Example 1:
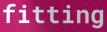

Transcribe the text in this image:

fitting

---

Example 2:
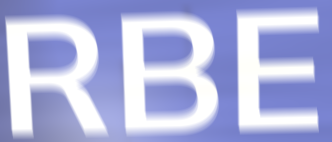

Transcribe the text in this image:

RBE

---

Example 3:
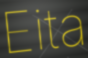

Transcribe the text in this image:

Eita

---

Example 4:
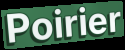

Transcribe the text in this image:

Poirier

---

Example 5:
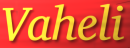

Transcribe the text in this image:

Vaheli